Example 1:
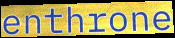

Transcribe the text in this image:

enthrone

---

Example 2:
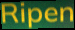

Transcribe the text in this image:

Ripen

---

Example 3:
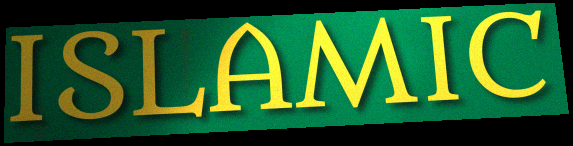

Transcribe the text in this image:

ISLAMIC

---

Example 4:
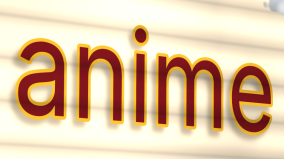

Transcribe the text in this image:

anime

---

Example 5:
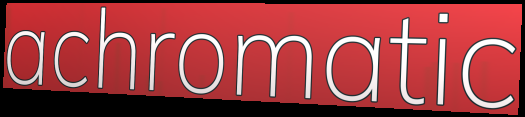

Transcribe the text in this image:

achromatic